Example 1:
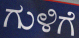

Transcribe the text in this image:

ಗುಳಿಗೆ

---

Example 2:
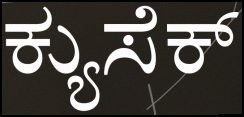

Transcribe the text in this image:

ಕ್ಯುಸೆಕ್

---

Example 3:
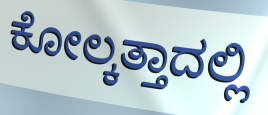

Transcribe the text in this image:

ಕೋಲ್ಕತ್ತಾದಲ್ಲಿ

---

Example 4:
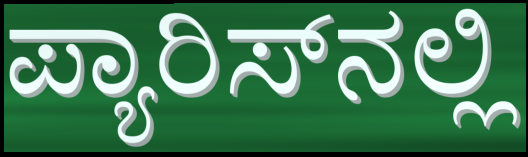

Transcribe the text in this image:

ಪ್ಯಾರಿಸ್‌ನಲ್ಲಿ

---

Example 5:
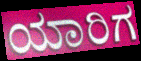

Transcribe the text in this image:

ಯಾರಿಗ